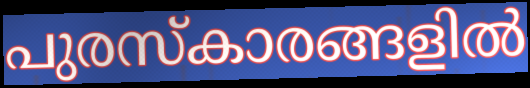
പുരസ്കാരങ്ങളിൽ